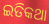
ଇତିକଥା